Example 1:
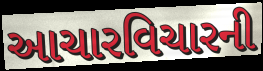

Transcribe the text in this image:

આચારવિચારની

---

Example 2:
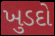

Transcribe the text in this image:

ખુડદો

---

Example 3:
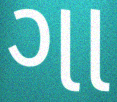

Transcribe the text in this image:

ગા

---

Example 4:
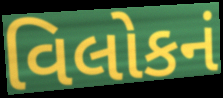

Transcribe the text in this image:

વિલોકનં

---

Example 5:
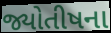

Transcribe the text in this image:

જ્યોતીષના